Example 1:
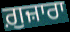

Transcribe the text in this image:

ਗ਼ੁਜ਼ਾਰਾ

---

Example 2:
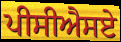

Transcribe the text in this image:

ਪੀਸੀਐਸਏ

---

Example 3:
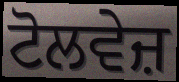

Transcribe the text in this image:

ਟੋਲਵੇਜ਼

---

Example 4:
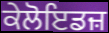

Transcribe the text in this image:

ਕੇਲੋਇਡਜ਼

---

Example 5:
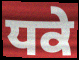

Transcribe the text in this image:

ਧਕੇ